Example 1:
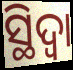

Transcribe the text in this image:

ସ୍ଥିଦ୍ଵା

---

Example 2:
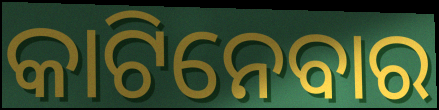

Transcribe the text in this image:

କାଟିନେବାର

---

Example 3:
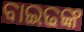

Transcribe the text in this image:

ବାଇଢଙ୍କ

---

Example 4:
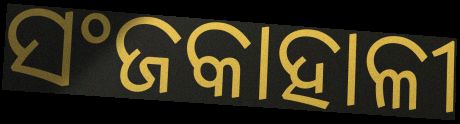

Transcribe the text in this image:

ସଂଜକାହାଳୀ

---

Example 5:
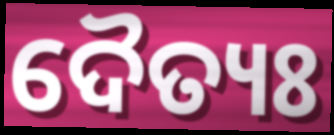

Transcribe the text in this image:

ଦୈତ୍ୟଃ